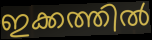
ഇക്കത്തിൽ